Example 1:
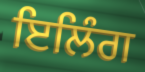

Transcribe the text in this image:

ਇਲਿੰਗ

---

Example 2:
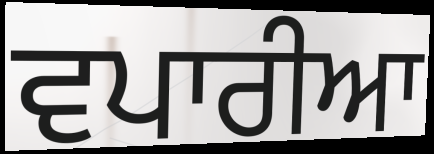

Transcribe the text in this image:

ਵਪਾਰੀਆ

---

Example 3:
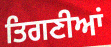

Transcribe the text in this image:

ਤਿਗਣੀਆਂ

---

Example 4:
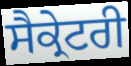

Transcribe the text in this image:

ਸੈਕ੍ਰੇਟਰੀ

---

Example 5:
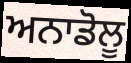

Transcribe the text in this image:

ਅਨਾਡੋਲੂ